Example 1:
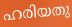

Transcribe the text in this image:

ഹരിയതു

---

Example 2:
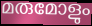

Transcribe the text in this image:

മരുമോളും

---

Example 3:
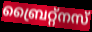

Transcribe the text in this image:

ബ്രൈറ്റ്നസ്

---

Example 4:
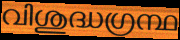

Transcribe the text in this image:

വിശുദ്ധഗ്രന്ഥ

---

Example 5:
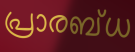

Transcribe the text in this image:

പ്രാരബ്ധ